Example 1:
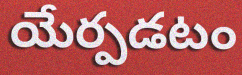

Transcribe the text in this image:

యేర్పడటం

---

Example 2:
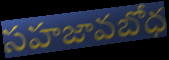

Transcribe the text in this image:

సహజావబోధ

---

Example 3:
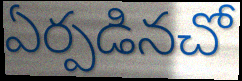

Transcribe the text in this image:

ఏర్పడినచో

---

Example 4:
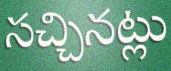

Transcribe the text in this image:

సచ్చినట్లు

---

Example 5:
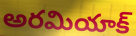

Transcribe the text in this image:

అరమియాక్